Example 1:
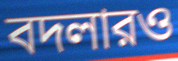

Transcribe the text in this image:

বদলারও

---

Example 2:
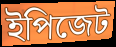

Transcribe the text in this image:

ইপিজেট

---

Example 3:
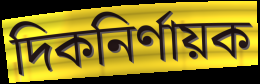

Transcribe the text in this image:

দিকনির্ণায়ক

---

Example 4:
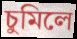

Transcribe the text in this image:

চুমিলে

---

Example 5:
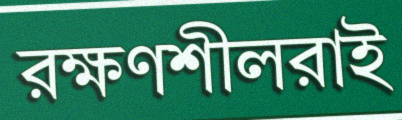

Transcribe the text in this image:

রক্ষণশীলরাই